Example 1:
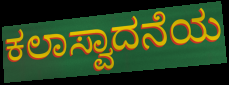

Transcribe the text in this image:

ಕಲಾಸ್ವಾದನೆಯ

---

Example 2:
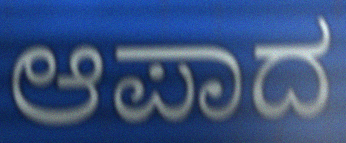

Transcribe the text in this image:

ಆಪಾದ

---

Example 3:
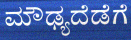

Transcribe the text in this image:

ಮೌಢ್ಯದೆಡೆಗೆ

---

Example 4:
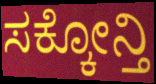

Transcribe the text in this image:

ಸಕ್ಕೋನ್ತಿ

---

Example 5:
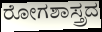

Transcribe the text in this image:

ರೋಗಶಾಸ್ತ್ರದ